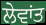
ਲੇਵਾਂਤ